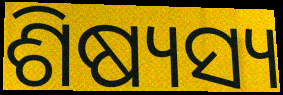
ଶିଷ୍ୟସ୍ୟ